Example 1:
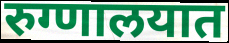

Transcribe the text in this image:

रुग्णालयात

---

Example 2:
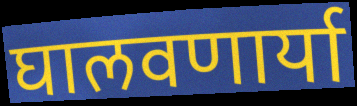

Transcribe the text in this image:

घालवणार्या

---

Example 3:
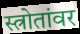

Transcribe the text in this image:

स्त्रोतांवर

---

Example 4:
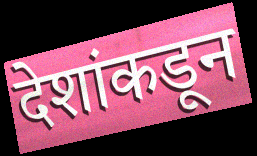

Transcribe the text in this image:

देशांकडून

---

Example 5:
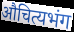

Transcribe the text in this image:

औचित्यभंग